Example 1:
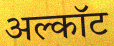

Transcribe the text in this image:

अल्कॉट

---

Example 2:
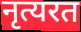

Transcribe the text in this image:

नृत्यरत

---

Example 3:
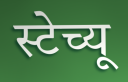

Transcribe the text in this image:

स्टेच्यू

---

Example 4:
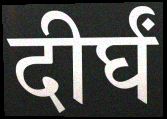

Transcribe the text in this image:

दीर्घं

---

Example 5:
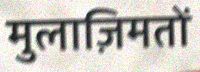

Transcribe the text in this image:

मुलाज़िमतों